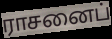
ராசனைப்